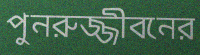
পুনরুজ্জীবনের